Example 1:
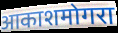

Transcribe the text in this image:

आकाशमोगरा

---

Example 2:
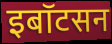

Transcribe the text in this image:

इबॉटसन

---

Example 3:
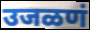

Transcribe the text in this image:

उजळणं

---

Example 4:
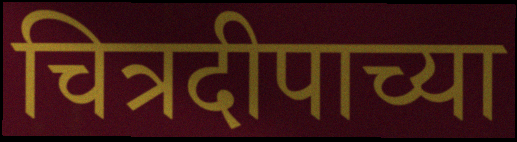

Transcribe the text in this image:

चित्रदीपाच्या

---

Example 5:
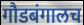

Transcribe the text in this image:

गौडबंगालच